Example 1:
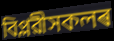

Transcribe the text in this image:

বিপ্লৱীসকলৰ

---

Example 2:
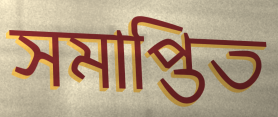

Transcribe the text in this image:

সমাপ্তিত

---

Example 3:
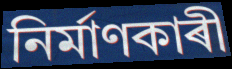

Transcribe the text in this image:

নিৰ্মাণকাৰী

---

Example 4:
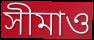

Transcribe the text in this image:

সীমাও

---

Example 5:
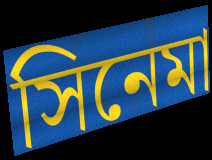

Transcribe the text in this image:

সিনেমা